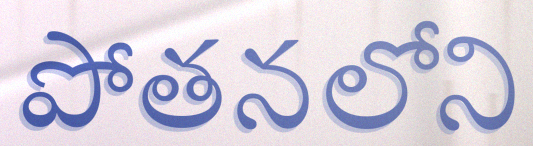
పోతనలోని